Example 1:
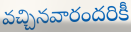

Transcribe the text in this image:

వచ్చినవారందరికీ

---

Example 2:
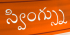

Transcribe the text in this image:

స్వింగ్స్ను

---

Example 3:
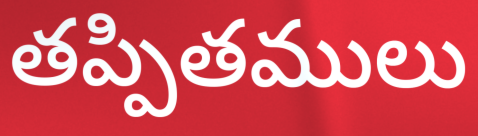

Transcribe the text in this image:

తప్పితములు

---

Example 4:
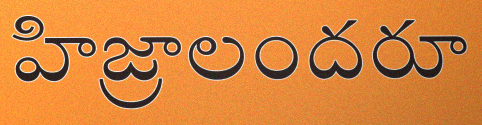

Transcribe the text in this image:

హిజ్రాలందరూ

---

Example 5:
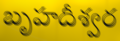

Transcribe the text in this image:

బృహదీశ్వర